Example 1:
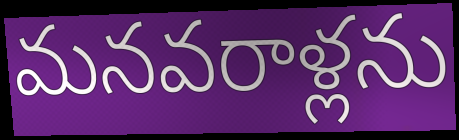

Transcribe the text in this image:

మనవరాళ్లను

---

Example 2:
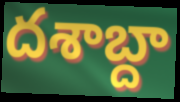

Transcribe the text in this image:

దశాబ్దా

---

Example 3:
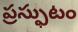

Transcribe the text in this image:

ప్రస్ఫుటం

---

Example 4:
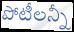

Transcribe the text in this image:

పోటీలన్నీ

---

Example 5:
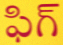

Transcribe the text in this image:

ఫిగ్